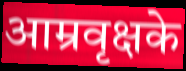
आम्रवृक्षके